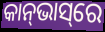
କାନ୍‌ଭାସ୍‌ରେ